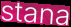
stana